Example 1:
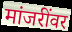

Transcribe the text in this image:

मांजरींवर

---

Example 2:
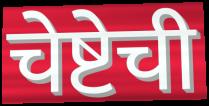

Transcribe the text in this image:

चेष्टेची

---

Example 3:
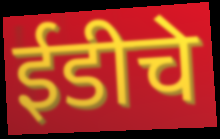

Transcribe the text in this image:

ईडीचे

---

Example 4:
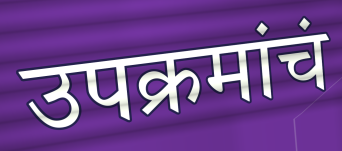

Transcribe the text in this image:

उपक्रमांचं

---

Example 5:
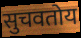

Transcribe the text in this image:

सुचवतोय